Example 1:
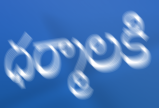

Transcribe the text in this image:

ధర్మాలకి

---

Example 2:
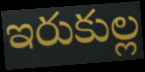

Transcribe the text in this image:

ఇరుకుల్ల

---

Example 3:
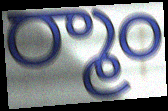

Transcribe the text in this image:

ర్మాం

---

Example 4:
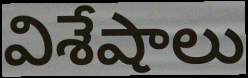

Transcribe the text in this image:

విశేషాలు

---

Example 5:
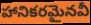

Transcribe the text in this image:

హానికరమైనవీ